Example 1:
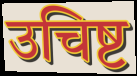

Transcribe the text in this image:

उचिष्ट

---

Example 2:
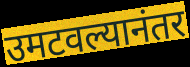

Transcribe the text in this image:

उमटवल्यानंतर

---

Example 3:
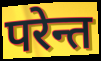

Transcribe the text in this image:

परेन्त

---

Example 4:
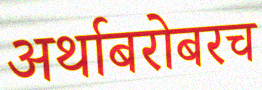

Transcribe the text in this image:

अर्थाबरोबरच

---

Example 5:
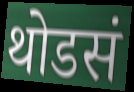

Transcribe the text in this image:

थोडसं